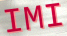
IMI